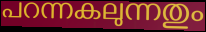
പറന്നകലുന്നതും